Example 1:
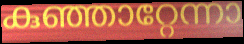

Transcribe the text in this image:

കുഞ്ഞാറ്റേന്നാ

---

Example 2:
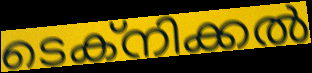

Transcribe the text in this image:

ടെക്നിക്കൽ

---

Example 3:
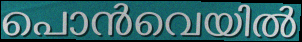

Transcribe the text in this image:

പൊൻവെയിൽ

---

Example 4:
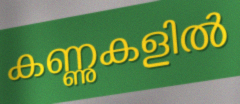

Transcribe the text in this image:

കണ്ണുകളിൽ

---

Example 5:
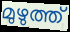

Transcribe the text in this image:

മുഴുത്ത്